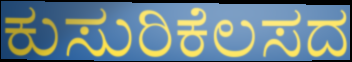
ಕುಸುರಿಕೆಲಸದ